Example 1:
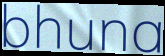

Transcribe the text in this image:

bhuna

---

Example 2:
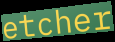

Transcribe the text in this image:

etcher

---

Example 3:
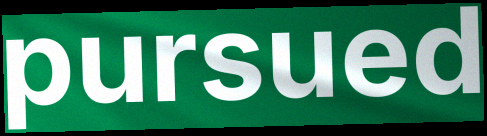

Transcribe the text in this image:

pursued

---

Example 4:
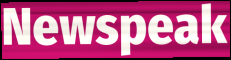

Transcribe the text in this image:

Newspeak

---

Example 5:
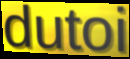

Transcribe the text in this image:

dutoi